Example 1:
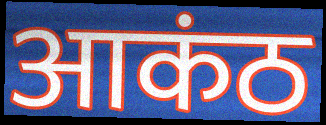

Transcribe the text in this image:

आकंठ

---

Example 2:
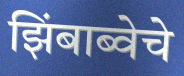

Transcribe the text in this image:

झिंबाब्वेचे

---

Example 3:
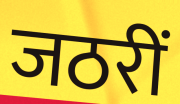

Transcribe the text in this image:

जठरीं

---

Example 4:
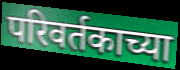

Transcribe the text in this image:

परिवर्तकाच्या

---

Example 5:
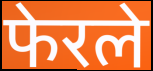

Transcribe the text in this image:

फेरले